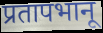
प्रतापभानू